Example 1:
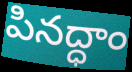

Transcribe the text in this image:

పినద్ధాం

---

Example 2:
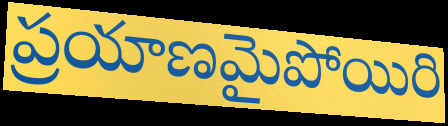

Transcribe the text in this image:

ప్రయాణమైపోయిరి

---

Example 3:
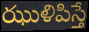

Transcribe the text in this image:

ఝుళిపిస్తే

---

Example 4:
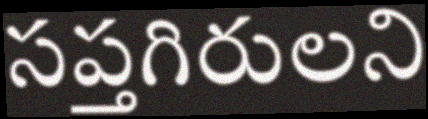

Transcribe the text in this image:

సప్తగిరులని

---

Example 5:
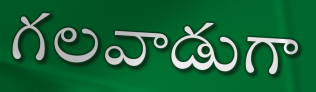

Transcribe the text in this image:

గలవాడుగా